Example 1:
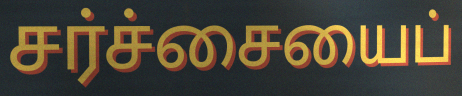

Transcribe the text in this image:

சர்ச்சையைப்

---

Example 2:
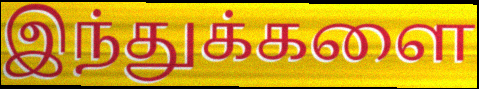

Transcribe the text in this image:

இந்துக்களை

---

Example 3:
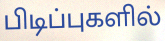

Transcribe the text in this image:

பிடிப்புகளில்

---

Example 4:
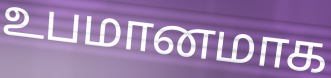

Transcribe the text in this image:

உபமானமாக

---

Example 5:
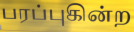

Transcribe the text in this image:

பரப்புகின்ற